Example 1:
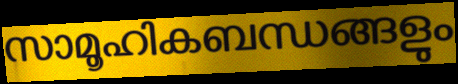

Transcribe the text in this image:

സാമൂഹികബന്ധങ്ങളും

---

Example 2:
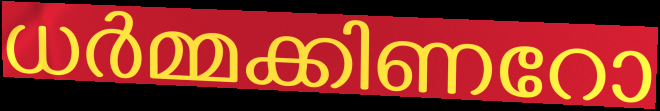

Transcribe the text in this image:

ധർമ്മക്കിണറോ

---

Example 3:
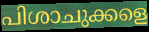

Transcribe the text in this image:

പിശാചുക്കളെ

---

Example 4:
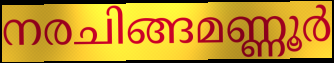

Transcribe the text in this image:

നരചിങ്ങമണ്ണൂർ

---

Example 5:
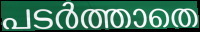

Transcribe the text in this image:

പടർത്താതെ